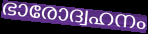
ഭാരോദ്വഹനം